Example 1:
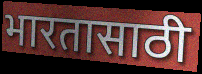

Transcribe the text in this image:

भारतासाठी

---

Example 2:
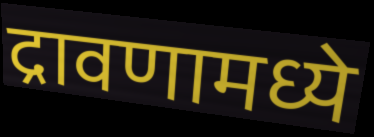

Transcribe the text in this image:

द्रावणामध्ये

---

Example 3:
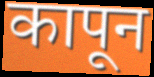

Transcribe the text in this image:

कापून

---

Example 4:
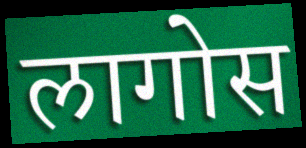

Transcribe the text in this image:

लागोस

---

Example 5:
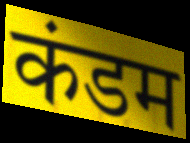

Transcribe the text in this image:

कंडम